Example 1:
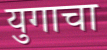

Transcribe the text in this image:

युगाचा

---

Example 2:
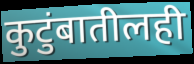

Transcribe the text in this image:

कुटुंबातीलही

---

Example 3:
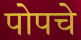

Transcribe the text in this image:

पोपचे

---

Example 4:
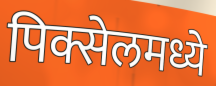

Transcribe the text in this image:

पिक्सेलमध्ये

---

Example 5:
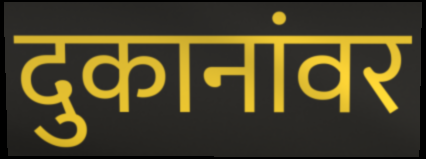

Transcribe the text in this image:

दुकानांवर